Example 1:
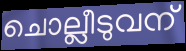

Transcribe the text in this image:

ചൊല്ലീടുവന്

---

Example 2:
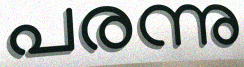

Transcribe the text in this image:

പരന്നു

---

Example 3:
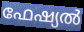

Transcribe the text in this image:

ഫേഷ്യൽ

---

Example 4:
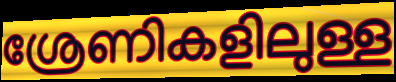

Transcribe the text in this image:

ശ്രേണികളിലുള്ള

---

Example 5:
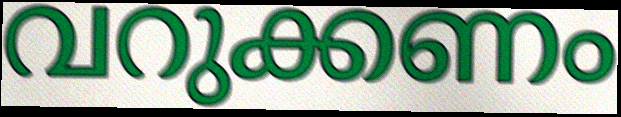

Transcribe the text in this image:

വറുക്കണം